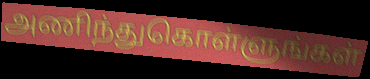
அணிந்துகொள்ளுங்கள்